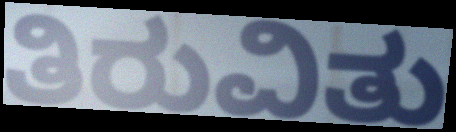
ತಿರುವಿತು